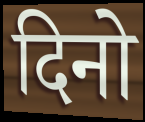
दिनो